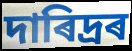
দাৰিদ্ৰৰ